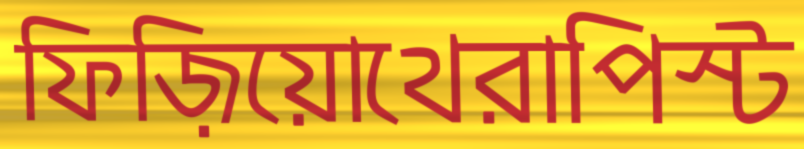
ফিজ়িয়োথেরাপিস্ট